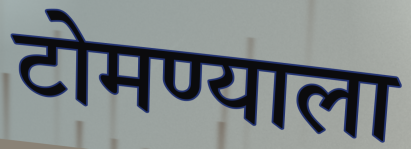
टोमण्याला